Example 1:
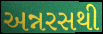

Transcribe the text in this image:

અન્નરસથી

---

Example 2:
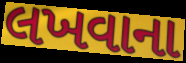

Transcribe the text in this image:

લખવાના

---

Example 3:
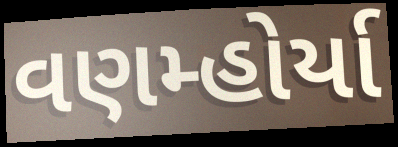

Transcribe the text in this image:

વણમ્હોર્યા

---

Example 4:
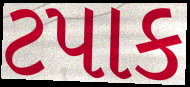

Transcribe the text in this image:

ટપાક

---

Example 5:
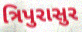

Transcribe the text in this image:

ત્રિપુરાસુર